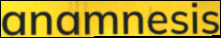
anamnesis